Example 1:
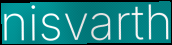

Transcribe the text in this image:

nisvarth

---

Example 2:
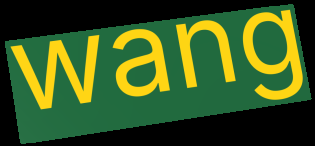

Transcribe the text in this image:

wang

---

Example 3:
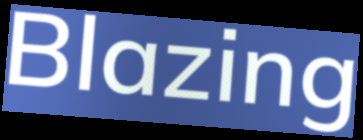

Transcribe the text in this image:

Blazing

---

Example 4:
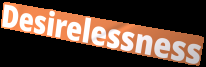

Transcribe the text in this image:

Desirelessness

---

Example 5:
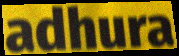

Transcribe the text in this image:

adhura